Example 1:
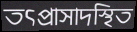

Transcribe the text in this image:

তৎপ্রাসাদস্থিত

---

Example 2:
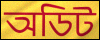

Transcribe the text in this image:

অডিট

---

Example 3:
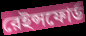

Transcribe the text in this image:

রেইন্সফোর্ড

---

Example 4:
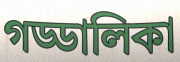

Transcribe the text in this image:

গড্ডালিকা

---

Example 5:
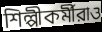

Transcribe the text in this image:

শিল্পীকর্মীরাও